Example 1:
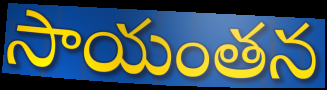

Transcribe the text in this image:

సాయంతన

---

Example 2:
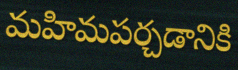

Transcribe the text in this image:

మహిమపర్చడానికి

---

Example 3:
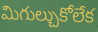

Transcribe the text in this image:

మిగుల్చుకోలేక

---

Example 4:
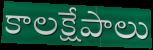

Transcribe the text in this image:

కాలక్షేపాలు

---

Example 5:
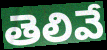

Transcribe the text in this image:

తెలివే